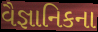
વૈજ્ઞાનિકના